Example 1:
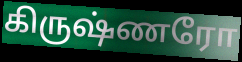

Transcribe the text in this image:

கிருஷ்ணரோ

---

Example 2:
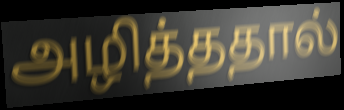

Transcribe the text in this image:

அழித்ததால்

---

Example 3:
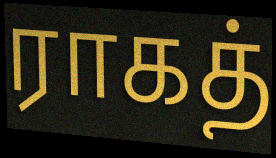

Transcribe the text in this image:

ராகத்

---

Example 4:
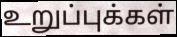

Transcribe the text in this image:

உறுப்புக்கள்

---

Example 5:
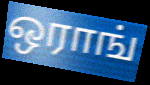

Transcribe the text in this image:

ஒராங்